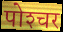
पोश्चर